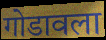
गोडावला